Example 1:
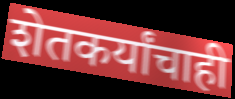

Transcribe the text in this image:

शेतकर्यांचाही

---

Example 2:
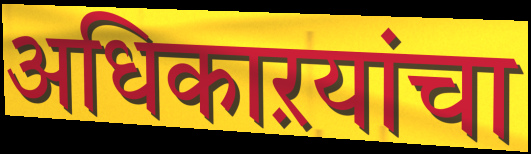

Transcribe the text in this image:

अधिकाऱयांचा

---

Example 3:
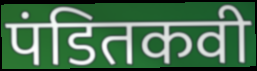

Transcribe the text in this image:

पंडितकवी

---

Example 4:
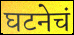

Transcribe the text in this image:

घटनेचं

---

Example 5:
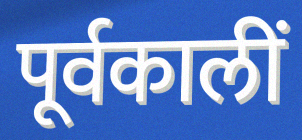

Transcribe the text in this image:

पूर्वकालीं